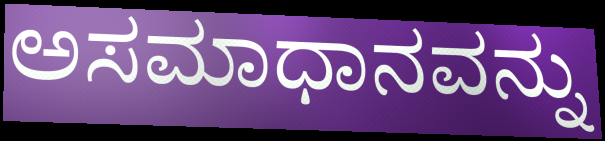
ಅಸಮಾಧಾನವನ್ನು